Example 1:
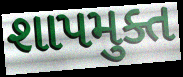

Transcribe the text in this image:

શાપમુક્ત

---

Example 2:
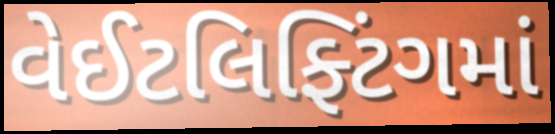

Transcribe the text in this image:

વેઈટલિફ્ટિંગમાં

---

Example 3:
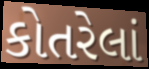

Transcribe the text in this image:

કોતરેલાં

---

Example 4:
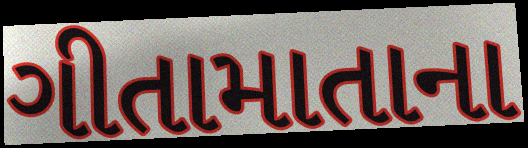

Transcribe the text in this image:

ગીતામાતાના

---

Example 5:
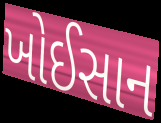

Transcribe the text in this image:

ખોઈસાન